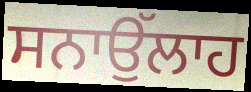
ਸਨਾਉੱਲਾਹ